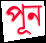
পূন